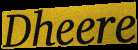
Dheere